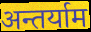
अन्तर्याम